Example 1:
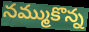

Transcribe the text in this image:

నమ్ముకొన్న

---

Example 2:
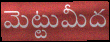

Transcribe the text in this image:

మెట్టుమీద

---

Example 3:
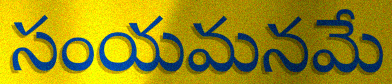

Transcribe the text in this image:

సంయమనమే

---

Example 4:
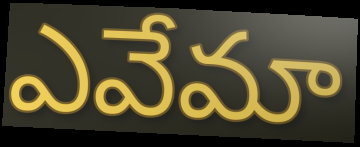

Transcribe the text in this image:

ఎవేమా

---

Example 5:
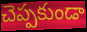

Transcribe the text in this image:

చెప్పకుండా